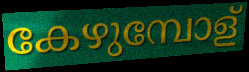
കേഴുമ്പോള്